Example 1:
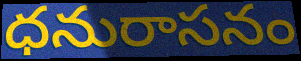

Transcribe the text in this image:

ధనురాసనం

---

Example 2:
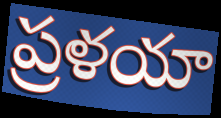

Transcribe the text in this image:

ప్రళయా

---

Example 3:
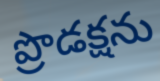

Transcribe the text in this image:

ప్రొడక్షను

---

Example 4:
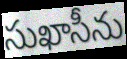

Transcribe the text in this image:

సుఖాసీను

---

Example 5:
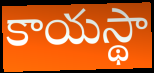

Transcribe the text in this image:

కాయస్థా